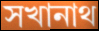
সখানাথ